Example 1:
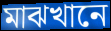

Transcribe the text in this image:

মাঝখানে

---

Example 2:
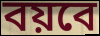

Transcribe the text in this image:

বয়বে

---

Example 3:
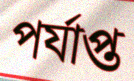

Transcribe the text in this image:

পর্যাপ্ত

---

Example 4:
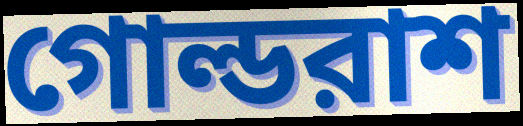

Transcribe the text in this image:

গোল্ডরাশ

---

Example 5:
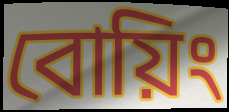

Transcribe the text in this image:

বোয়িং